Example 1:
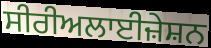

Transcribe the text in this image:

ਸੀਰੀਅਲਾਈਜ਼ੇਸ਼ਨ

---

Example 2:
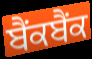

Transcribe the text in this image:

ਬੈਂਕਬੈਂਕ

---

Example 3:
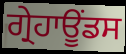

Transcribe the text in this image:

ਗ੍ਰੇਹਾਊਂਡਸ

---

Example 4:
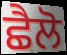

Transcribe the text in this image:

ਛੈਲੋ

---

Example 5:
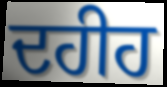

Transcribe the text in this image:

ਦਹੀਹ